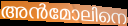
അൻമോലിനെ